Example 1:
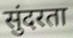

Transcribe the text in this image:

सुंदरता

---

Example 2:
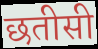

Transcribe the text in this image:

छतीसी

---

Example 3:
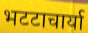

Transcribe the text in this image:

भटटाचार्या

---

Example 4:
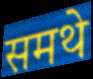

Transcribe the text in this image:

समथे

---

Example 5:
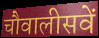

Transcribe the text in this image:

चौवालीसवें